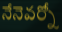
నేనెవర్నో